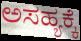
ಅಸಹ್ಯಕ್ಕೆ